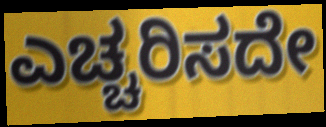
ಎಚ್ಚರಿಸದೇ